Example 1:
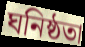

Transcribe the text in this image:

ঘনিষ্ঠতা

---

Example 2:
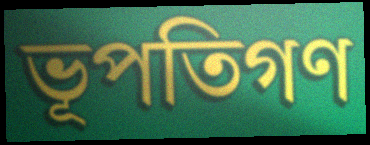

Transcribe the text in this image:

ভূপতিগণ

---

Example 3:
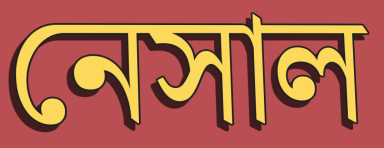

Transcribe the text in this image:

নেসাল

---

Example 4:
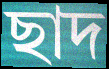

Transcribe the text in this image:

ছাদ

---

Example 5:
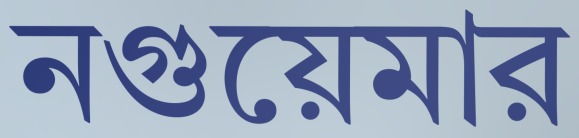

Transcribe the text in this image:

নগুয়েমার